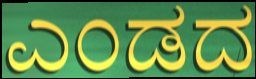
ಎಂಡದ